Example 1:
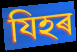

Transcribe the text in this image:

যিহৰ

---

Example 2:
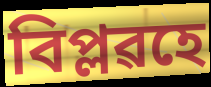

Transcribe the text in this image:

বিপ্লৱহে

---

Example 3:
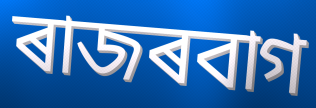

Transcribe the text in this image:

ৰাজৰবাগ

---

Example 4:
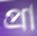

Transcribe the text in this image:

প্ৰা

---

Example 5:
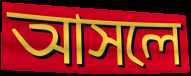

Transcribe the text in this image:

আসলে